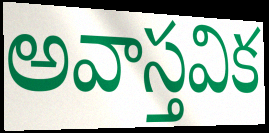
అవాస్తవిక